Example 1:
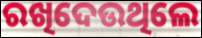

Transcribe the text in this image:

ରଖିଦେଉଥିଲେ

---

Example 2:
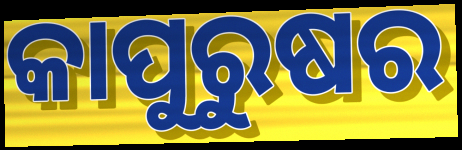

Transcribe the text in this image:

କାପୁରୁଷର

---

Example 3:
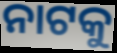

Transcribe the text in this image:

ନାଟକୁ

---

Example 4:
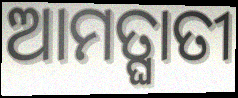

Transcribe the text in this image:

ଆମତ୍ଘାତୀ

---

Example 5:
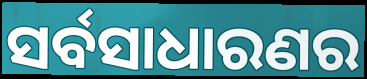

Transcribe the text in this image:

ସର୍ବସାଧାରଣର